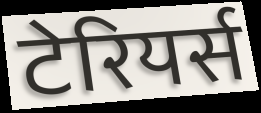
टेरियर्स